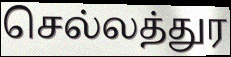
செல்லத்துர